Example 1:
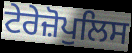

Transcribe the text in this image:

ਟੇਰੇਜ਼ੋਪੁਲਿਸ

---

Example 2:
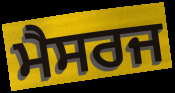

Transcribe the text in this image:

ਮੈਸਰਜ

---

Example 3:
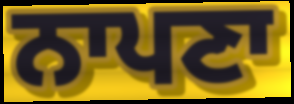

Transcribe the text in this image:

ਨਾਪਣਾ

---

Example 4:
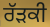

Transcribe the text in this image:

ਰੱੜਕੀ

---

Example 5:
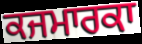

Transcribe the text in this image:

ਕਜਮਾਰਕਾ